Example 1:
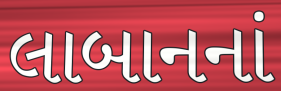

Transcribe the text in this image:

લાબાનનાં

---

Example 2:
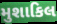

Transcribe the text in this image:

મુશાકિલ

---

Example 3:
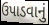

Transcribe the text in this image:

ઉપાડવાનું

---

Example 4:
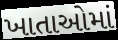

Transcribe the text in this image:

ખાતાઓમાં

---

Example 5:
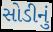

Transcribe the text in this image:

સોડીનું